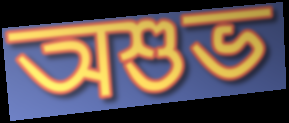
অশুভ